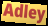
Adley